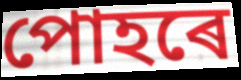
পোহৰে